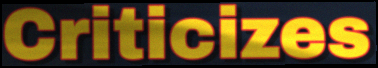
Criticizes